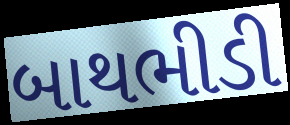
બાથભીડી